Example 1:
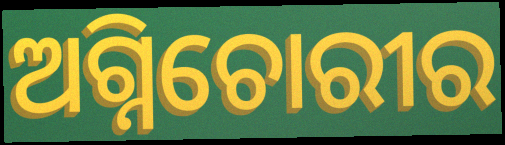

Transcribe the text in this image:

ଅଗ୍ନିଚୋରୀର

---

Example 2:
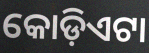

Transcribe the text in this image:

କୋଡ଼ିଏଟା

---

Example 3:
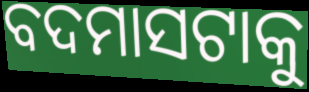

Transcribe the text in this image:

ବଦମାସଟାକୁ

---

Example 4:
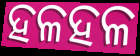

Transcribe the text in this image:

ହଳହଳ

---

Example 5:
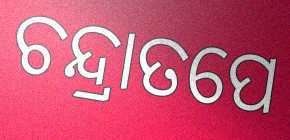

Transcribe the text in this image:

ଚନ୍ଦ୍ରାତପେ